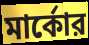
মার্কোর